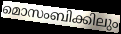
മൊസംബിക്കിലും